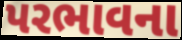
પરભાવના